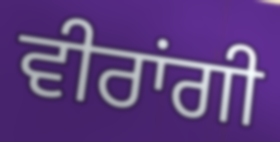
ਵੀਰਾਂਗੀ